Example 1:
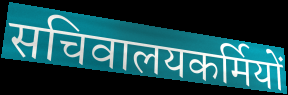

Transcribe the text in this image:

सचिवालयकर्मियों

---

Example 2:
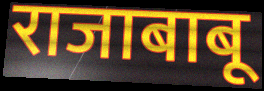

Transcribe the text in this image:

राजाबाबू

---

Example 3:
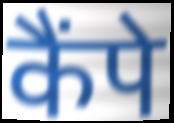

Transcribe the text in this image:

कैंपे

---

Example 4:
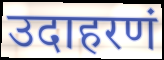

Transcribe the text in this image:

उदाहरणं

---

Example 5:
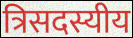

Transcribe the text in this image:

त्रिसदस्यीय